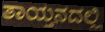
ತಾಯ್ತನದಲ್ಲಿ